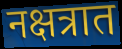
नक्षत्रात